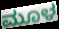
ಮೂಳ